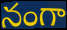
నంగా